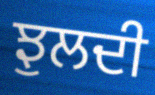
ਝੁਲਦੀ